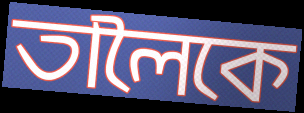
তালৈকে